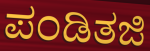
ಪಂಡಿತಜಿ